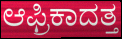
ಆಫ್ರಿಕಾದತ್ತ